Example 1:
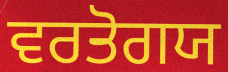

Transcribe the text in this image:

ਵਰਤੋਗਯ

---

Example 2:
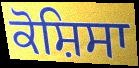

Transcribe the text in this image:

ਕੋਸ਼ਿਸਾ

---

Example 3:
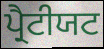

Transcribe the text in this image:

ਪ੍ਰੈਟੀਯਟ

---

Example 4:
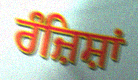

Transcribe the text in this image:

ਰੰਜ਼ਿਸ਼ਾਂ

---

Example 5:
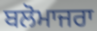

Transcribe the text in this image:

ਬਲੋਮਾਜਰਾ